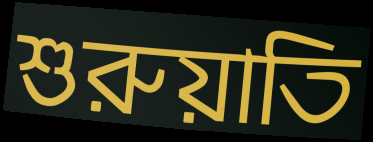
শুরুয়াতি